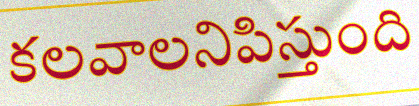
కలవాలనిపిస్తుంది